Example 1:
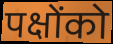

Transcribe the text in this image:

पक्षोंको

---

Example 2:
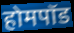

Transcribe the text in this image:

होमपॉड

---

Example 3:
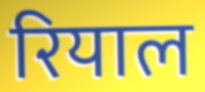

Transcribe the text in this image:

रियाल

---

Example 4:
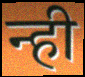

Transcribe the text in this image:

न्ही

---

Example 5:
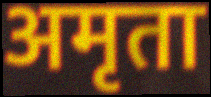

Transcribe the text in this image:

अमृता